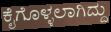
ಕೈಗೊಳ್ಳಲಾಗಿದ್ದು